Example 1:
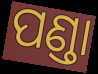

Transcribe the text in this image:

ପଣ୍ଡା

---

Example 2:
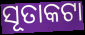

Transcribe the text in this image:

ସୂତାକଟା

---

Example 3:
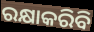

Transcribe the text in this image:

ରକ୍ଷାକରିବି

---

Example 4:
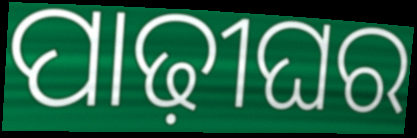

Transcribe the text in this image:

ପାଢ଼ୀଘର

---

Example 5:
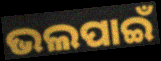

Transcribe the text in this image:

ଭଲପାଇଁ